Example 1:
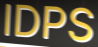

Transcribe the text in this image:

IDPS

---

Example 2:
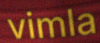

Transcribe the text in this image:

vimla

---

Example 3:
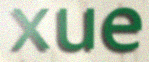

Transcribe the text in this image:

xue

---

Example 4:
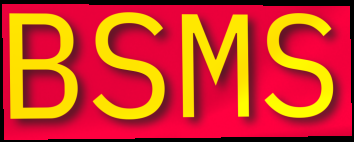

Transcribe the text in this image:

BSMS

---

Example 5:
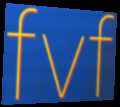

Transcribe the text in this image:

fvf